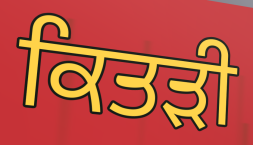
ਕਿਤੜੀ